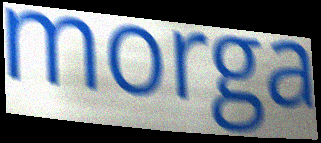
morga